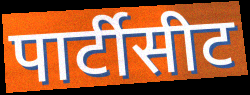
पार्टीसीट